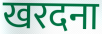
खरदना